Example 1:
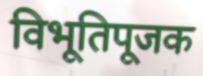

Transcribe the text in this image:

विभूतिपूजक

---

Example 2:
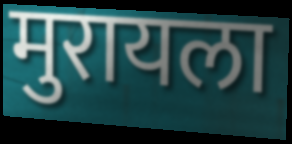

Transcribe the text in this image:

मुरायला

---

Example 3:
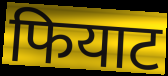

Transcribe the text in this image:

फियाट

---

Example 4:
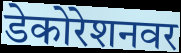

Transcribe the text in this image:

डेकोरेशनवर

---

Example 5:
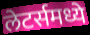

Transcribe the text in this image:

लेटर्समध्ये